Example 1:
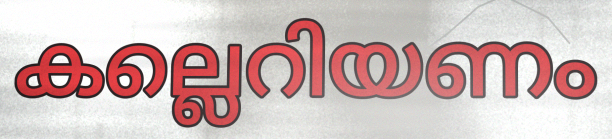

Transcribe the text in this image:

കല്ലെറിയണം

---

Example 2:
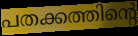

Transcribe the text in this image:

പതക്കത്തിന്റെ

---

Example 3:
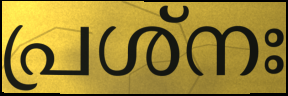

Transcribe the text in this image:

പ്രശ്നഃ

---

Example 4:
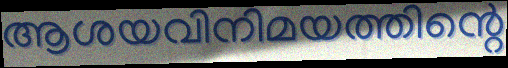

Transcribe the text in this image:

ആശയവിനിമയത്തിന്റെ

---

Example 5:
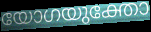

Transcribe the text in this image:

യോഗയുക്തോ